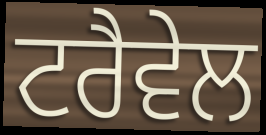
ਟਰੈਵੇਲ